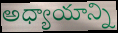
అధ్యాయాన్ని